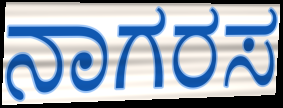
ನಾಗರಸ